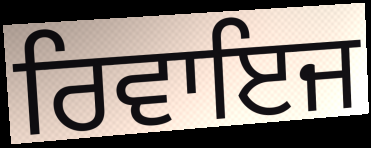
ਰਿਵਾਇਜ